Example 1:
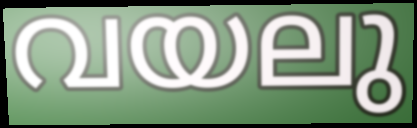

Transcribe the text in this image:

വയലു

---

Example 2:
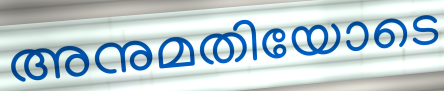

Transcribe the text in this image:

അനുമതിയോടെ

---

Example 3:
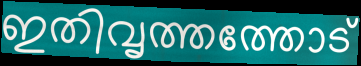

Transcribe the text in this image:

ഇതിവൃത്തത്തോട്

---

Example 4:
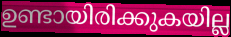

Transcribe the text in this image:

ഉണ്ടായിരിക്കുകയില്ല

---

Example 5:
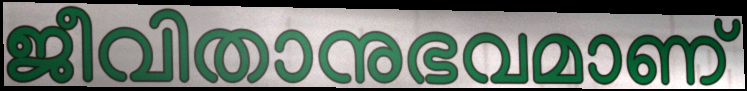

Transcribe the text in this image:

ജീവിതാനുഭവമാണ്